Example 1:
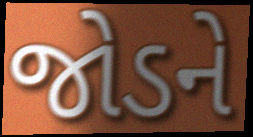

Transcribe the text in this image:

જોડને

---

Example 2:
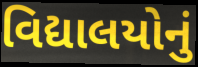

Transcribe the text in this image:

વિદ્યાલયોનું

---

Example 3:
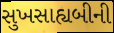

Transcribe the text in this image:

સુખસાહ્યબીની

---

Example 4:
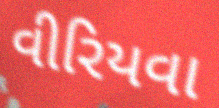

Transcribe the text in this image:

વીરિયવા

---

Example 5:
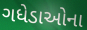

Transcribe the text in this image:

ગધેડાઓના